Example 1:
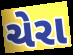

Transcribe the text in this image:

ચેરા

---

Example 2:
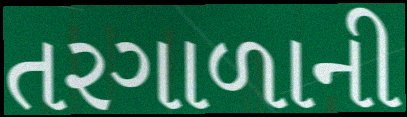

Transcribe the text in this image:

તરગાળાની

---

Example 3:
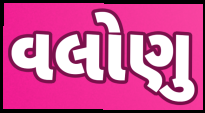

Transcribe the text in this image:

વલોણુ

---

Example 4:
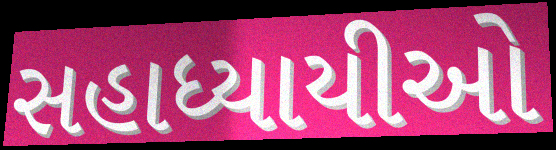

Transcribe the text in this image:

સહાધ્યાયીઓ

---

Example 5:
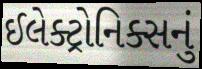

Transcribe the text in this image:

ઈલેક્ટ્રોનિક્સનું